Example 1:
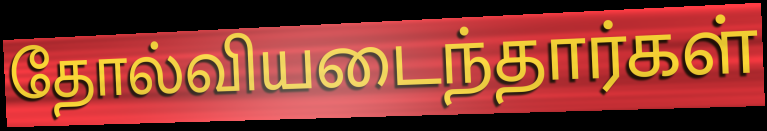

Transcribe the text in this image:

தோல்வியடைந்தார்கள்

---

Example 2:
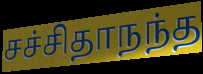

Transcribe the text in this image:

சச்சிதாநந்த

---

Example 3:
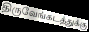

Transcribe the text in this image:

திருவேங்கடத்துக்கு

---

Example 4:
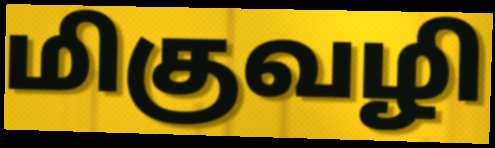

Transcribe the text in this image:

மிகுவழி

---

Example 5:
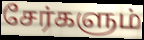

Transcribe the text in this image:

சேர்களும்